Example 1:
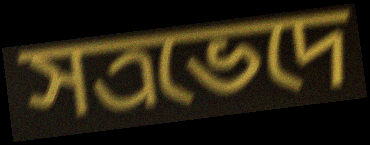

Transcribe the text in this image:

সত্ৰভেদে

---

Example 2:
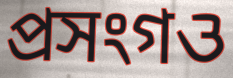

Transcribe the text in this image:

প্ৰসংগও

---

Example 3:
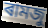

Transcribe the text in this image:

ৰামজু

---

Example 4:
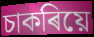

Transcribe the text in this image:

চাকৰিয়ে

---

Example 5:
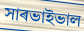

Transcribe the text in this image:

সাৰভাইভাল